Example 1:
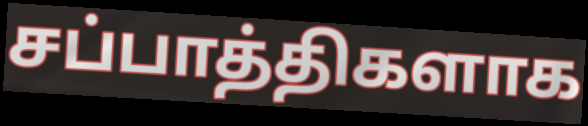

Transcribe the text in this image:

சப்பாத்திகளாக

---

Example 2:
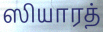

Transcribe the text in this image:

ஸியாரத்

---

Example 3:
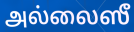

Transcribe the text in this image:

அல்லைஸீ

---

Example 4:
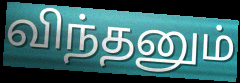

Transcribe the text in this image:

விந்தனும்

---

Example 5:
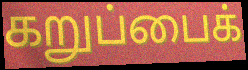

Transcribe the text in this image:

கறுப்பைக்